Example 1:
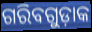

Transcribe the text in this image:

ଗରିବଗୁଡ଼ାକ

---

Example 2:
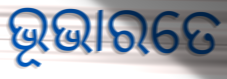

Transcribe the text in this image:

ଭୂଭାରତେ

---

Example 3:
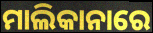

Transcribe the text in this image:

ମାଲିକାନାରେ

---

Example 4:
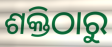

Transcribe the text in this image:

ଶକ୍ତିଠାରୁ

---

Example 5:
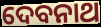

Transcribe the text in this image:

ଦେବନାଥ